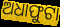
ଅଧାଫୁଟା